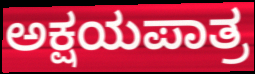
ಅಕ್ಷಯಪಾತ್ರ